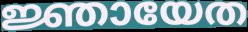
ജ്ഞായേത